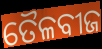
ତୈଳବୀଜ